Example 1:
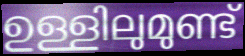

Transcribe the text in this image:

ഉള്ളിലുമുണ്ട്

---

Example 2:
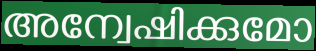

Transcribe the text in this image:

അന്വേഷിക്കുമോ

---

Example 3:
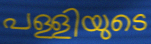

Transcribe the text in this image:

പള്ളിയുടെ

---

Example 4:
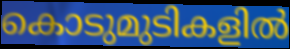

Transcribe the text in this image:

കൊടുമുടികളിൽ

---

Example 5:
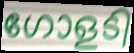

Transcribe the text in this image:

ഗോളടി